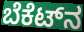
ಬೆಕೆಟ್‌ನ